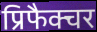
प्रिफैक्चर